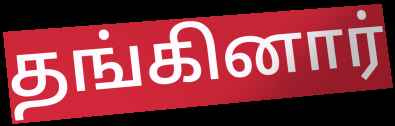
தங்கினார்